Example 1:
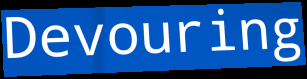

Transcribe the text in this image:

Devouring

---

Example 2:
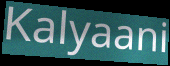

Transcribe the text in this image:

Kalyaani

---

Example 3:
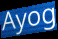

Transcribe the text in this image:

Ayog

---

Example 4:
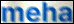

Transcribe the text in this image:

meha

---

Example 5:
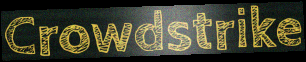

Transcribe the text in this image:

Crowdstrike